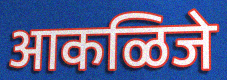
आकळिजे